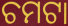
ଚମଟା